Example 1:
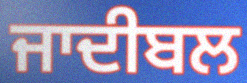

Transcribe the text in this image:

ਜਾਦੀਬਲ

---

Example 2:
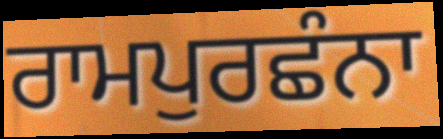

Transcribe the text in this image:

ਰਾਮਪੁਰਛੰਨਾ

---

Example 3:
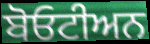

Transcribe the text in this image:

ਬੋਓਟੀਅਨ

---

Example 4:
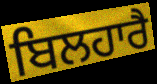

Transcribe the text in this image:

ਬਿਲਹਾਰੈ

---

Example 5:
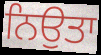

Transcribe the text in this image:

ਨਿਉਤਾ